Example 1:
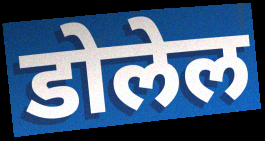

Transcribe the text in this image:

डोलेल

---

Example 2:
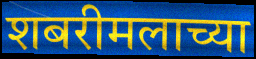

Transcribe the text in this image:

शबरीमलाच्या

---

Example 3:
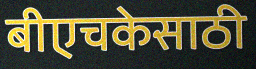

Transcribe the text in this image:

बीएचकेसाठी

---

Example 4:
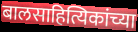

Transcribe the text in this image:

बालसाहित्यिकांच्या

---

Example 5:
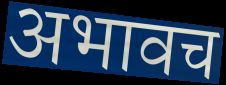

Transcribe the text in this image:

अभावच